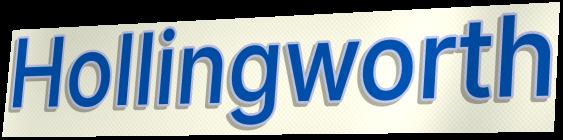
Hollingworth